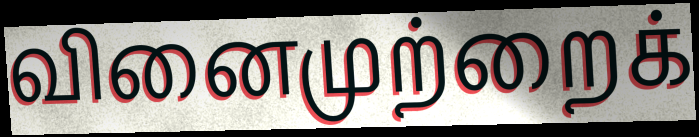
வினைமுற்றைக்